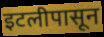
इटलीपासून